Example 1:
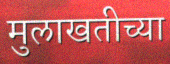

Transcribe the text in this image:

मुलाखतीच्या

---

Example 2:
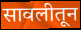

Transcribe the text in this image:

सावलीतून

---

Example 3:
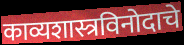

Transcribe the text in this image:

काव्यशास्त्रविनोदाचे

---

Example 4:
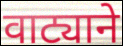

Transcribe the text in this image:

वाट्याने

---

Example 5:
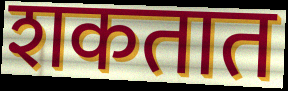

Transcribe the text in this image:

शकतात